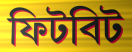
ফিটবিট